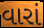
વારાં